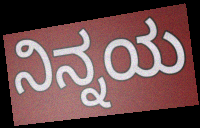
ನಿನ್ನಯ